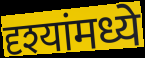
दृश्यांमध्ये